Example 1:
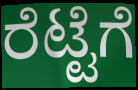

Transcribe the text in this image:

ರೆಟ್ಟೆಗೆ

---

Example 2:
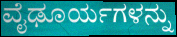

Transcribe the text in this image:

ವೈಢೂರ್ಯಗಳನ್ನು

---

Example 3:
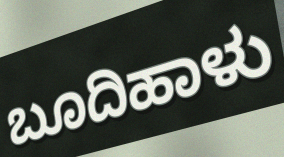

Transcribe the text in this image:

ಬೂದಿಹಾಳು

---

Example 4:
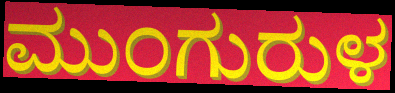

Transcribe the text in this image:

ಮುಂಗುರುಳ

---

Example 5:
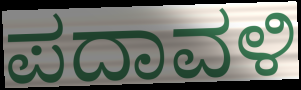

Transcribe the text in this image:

ಪದಾವಳಿ